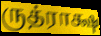
ருத்ராக்ஷ